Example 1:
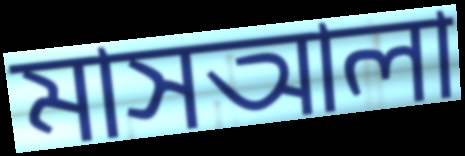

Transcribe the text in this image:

মাসআলা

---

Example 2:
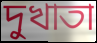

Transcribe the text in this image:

দুখাতা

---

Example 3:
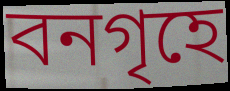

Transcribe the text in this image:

বনগৃহে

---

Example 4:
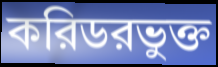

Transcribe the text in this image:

করিডরভুক্ত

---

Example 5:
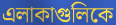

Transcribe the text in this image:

এলাকাগুলিকে